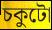
চকুটো